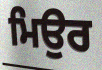
ਮਿਉਰ